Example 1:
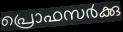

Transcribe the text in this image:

പ്രൊഫസർക്കു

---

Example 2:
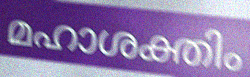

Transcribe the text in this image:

മഹാശക്തിം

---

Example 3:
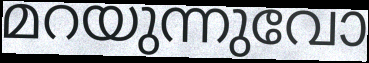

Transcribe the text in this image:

മറയുന്നുവോ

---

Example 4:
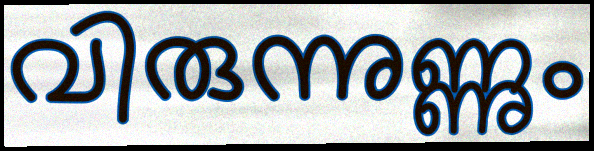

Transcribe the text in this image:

വിരുന്നുണ്ണും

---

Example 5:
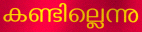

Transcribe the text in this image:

കണ്ടില്ലെന്നു